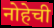
नोहेची